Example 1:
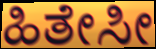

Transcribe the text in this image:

ಹಿತೇಸೀ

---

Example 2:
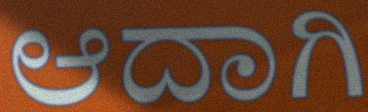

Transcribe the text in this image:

ಆದಾಗಿ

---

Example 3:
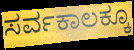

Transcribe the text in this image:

ಸರ್ವಕಾಲಕ್ಕೂ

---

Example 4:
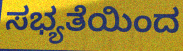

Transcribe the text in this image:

ಸಭ್ಯತೆಯಿಂದ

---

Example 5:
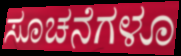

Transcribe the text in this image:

ಸೂಚನೆಗಳೂ